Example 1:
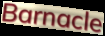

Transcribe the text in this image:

Barnacle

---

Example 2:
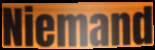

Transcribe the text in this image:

Niemand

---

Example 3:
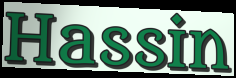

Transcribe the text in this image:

Hassin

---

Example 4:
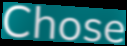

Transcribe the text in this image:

Chose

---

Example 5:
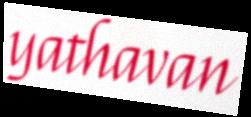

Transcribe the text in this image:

yathavan